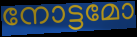
നോട്ടമോ